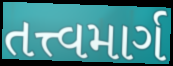
તત્ત્વમાર્ગ